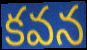
కవన